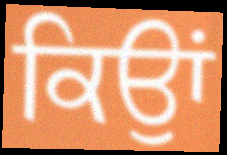
ਕਿਉਾਂ